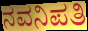
ನವನಿಪತಿ